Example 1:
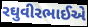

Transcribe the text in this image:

રઘુવીરભાઈએ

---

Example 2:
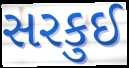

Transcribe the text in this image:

સરકુઈ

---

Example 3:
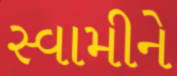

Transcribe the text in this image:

સ્વામીને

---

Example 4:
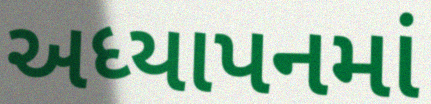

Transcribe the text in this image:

અધ્યાપનમાં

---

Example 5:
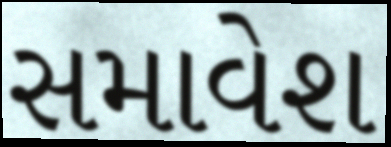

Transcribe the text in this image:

સમાવેશ